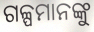
ଗଳ୍ପମାନଙ୍କୁ